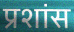
प्रशांस